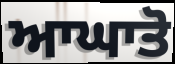
ਆਘਾਤੋ